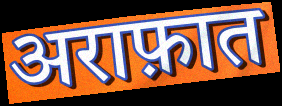
अराफ़ात